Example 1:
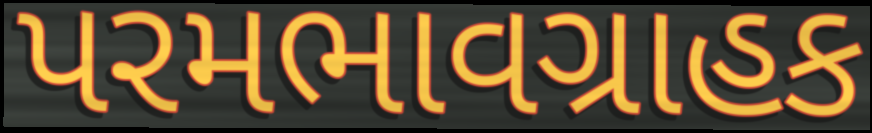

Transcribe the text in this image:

પરમભાવગ્રાહક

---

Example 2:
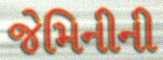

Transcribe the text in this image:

જેમિનીની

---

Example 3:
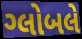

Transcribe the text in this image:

ગ્લોબલે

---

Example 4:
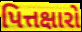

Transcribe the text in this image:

પિત્તક્ષારો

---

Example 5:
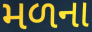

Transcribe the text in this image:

મળના